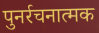
पुनर्रचनात्मक